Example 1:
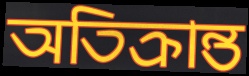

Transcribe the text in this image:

অতিক্ৰান্ত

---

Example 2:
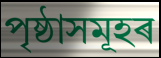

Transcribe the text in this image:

পৃষ্ঠাসমূহৰ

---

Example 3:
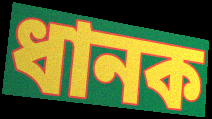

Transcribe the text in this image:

ধানক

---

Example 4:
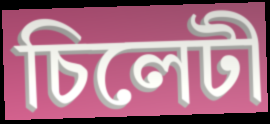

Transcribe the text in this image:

চিলেটী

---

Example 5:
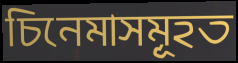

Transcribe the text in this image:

চিনেমাসমূহত